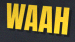
WAAH